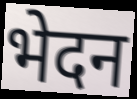
भेदन